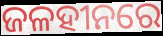
ଜଳହୀନରେ